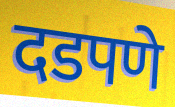
दडपणे